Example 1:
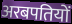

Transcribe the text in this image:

अरबपतियों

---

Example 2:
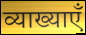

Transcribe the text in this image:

व्याख्याएँ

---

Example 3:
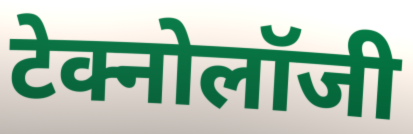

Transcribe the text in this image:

टेक्नोलॉजी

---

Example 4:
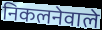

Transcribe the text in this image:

निकलनेवाले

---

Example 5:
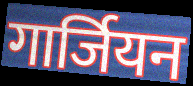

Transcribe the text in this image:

गार्जियन